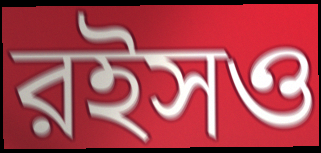
রইসও